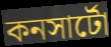
কনসার্টো